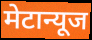
मेटान्यूज